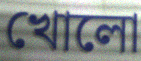
খোলো